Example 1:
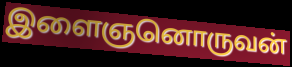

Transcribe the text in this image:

இளைஞனொருவன்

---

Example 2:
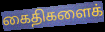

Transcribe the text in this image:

கைதிகளைக்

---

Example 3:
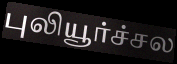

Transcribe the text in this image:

புலியூர்ச்சல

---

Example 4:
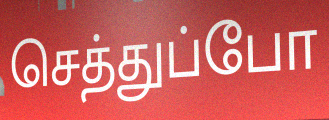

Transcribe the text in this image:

செத்துப்போ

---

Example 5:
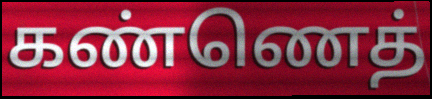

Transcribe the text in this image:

கண்ணெத்